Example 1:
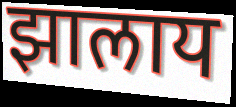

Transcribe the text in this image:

झालाय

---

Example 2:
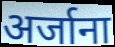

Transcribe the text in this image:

अर्जाना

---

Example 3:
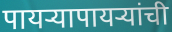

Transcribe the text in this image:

पायऱ्यापायऱ्यांची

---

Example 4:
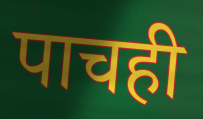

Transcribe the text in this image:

पाचही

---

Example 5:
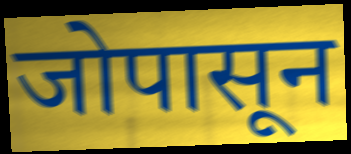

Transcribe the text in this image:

जोपासून